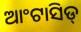
ଆଂଟାସିଡ୍